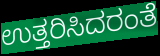
ಉತ್ತರಿಸಿದರಂತೆ